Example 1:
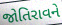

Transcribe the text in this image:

જોતિરાવને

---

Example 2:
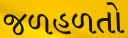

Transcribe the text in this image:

જળહળતો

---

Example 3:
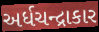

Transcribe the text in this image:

અર્ધચન્દ્રાકાર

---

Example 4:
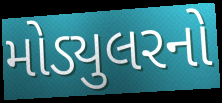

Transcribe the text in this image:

મોડ્યુલરનો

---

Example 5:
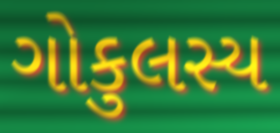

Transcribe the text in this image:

ગોકુલસ્ય